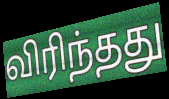
விரிந்தது